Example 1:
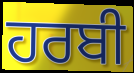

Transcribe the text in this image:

ਹਰਬੀ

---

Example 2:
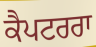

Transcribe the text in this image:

ਕੈਪਟਰਰਾ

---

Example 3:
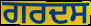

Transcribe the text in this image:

ਗਰਦਸ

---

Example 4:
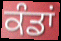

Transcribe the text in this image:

ਕੰਡਾਂ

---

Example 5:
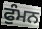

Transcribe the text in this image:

ਫੁੰਮਨ